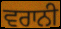
ਵਰਾਨੀ